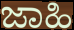
ಜಾಹಿ